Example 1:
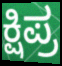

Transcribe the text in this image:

ಕ್ಷಿಪ್ರ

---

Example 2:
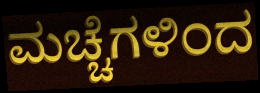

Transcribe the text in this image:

ಮಚ್ಚೆಗಳಿಂದ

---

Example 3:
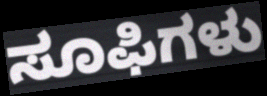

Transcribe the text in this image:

ಸೂಫಿಗಳು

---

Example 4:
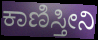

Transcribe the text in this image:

ಕಾಣಿಸ್ತೀನಿ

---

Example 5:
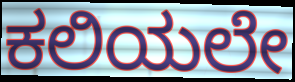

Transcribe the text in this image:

ಕಲಿಯಲೇ